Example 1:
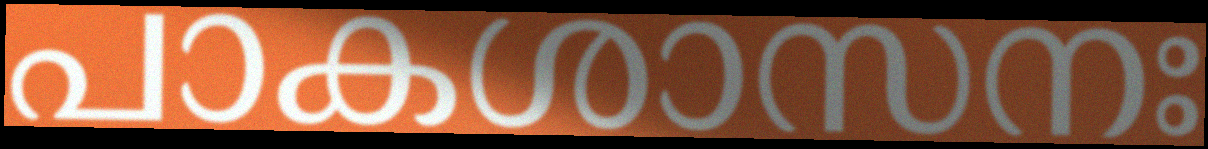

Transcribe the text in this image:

പാകശാസനഃ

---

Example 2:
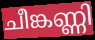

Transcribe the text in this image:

ചീങ്കണ്ണി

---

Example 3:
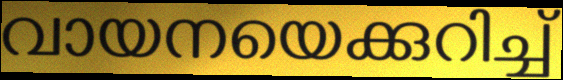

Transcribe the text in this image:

വായനയെക്കുറിച്ച്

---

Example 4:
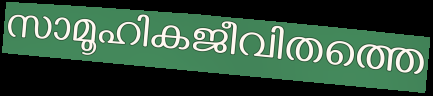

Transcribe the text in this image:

സാമൂഹികജീവിതത്തെ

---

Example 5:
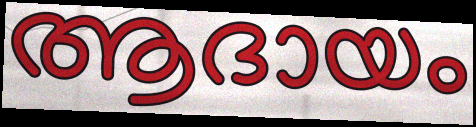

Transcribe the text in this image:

ആദായം